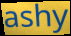
ashy